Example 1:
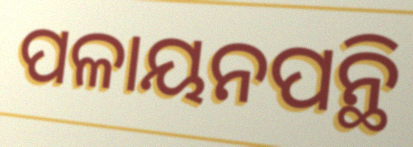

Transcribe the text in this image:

ପଳାୟନପନ୍ଥି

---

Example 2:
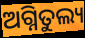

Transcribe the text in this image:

ଅଗ୍ନିତୁଲ୍ୟ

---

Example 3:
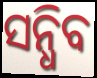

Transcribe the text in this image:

ସନ୍ଧିବ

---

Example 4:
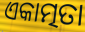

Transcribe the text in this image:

ଏକାତ୍ମତା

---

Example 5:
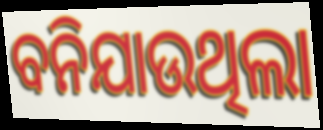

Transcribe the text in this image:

ବନିଯାଉଥିଲା